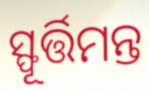
ସ୍ଫୂର୍ତ୍ତିମନ୍ତ